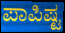
ಪಾಪಿಷ್ಟ